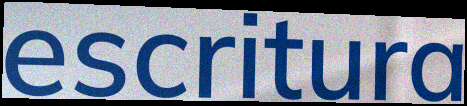
escritura